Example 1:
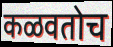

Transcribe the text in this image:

कळवतोच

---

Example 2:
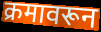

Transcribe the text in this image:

क्रमावरून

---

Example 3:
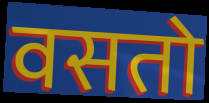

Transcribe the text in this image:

वसतो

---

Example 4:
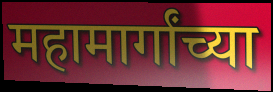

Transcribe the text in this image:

महामार्गांच्या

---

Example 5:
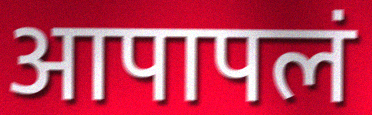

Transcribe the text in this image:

आपापलं